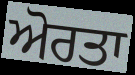
ਅੋਰਤਾ